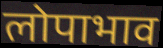
लोपाभाव